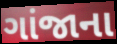
ગાંજાના